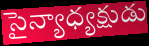
సైన్యాధ్యక్షుడు